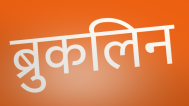
ब्रुकलिन